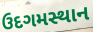
ઉદગમસ્થાન